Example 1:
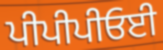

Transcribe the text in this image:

ਪੀਪੀਪੀਓਈ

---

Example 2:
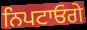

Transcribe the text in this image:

ਨਿਪਟਾਓਗੇ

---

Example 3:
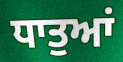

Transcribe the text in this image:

ਧਾਤੁਆਂ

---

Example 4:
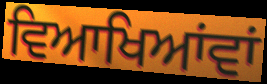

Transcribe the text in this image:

ਵਿਆਖਿਆਂਵਾਂ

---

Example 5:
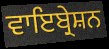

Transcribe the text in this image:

ਵਾਇਬ੍ਰੇਸ਼ਨ